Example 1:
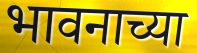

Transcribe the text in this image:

भावनाच्या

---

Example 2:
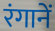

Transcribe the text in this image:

रंगानें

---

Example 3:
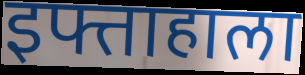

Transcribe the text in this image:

इफ्ताहाला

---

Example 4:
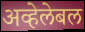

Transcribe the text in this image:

अव्हेलेबल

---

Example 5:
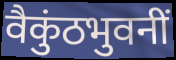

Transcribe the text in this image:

वैकुंठभुवनीं